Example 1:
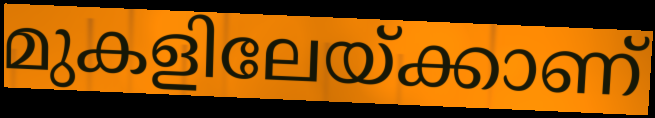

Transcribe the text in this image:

മുകളിലേയ്ക്കാണ്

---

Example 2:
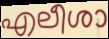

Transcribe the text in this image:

എലീശാ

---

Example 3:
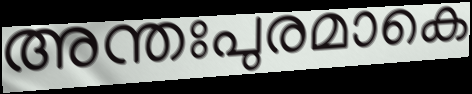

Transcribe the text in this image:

അന്തഃപുരമാകെ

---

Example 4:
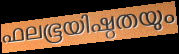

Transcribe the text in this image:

ഫലഭൂയിഷ്ഠതയും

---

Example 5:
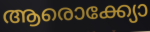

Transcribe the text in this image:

ആരൊക്ക്യോ